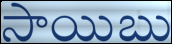
సాయిబు